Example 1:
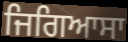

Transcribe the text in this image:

ਜਿਗਿਆਸਾ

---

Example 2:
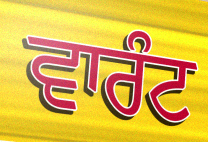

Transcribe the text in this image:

ਵਾਰੰਟ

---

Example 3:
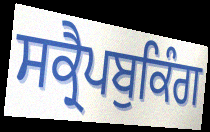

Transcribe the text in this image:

ਸਕ੍ਰੈਪਬੁਕਿੰਗ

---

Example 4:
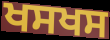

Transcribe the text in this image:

ਖਸਖਸ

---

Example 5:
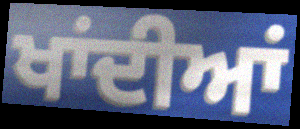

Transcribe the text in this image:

ਖਾਂਦੀਆਂ